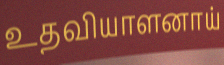
உதவியாளனாய்